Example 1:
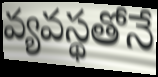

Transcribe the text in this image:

వ్యవస్థతోనే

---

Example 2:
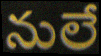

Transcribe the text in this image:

నులే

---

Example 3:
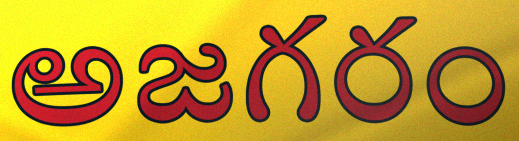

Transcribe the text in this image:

అజగరం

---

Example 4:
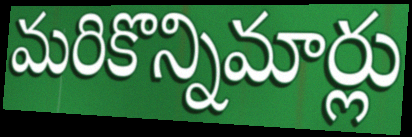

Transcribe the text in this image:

మరికొన్నిమార్లు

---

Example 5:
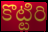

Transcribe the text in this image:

కొట్టిరి